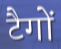
टैगों